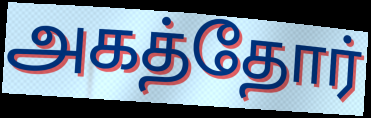
அகத்தோர்